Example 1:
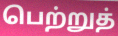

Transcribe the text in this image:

பெற்றுத்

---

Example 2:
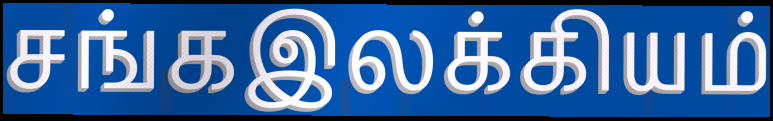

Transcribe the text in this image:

சங்கஇலக்கியம்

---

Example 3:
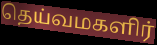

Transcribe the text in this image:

தெய்வமகளிர்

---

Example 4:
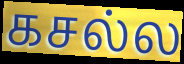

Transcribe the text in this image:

கசல்ல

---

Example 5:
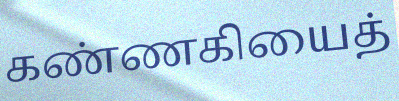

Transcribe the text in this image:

கண்ணகியைத்